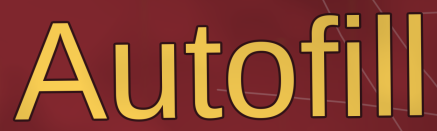
Autofill